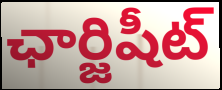
ఛార్జిషీట్